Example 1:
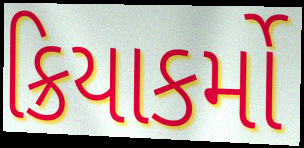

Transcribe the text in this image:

ક્રિયાકર્મો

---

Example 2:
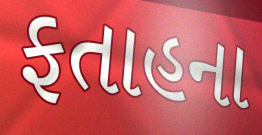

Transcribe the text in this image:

ફતાહના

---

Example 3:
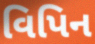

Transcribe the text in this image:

વિપિન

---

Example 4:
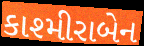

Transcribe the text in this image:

કાશ્મીરાબેન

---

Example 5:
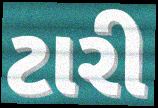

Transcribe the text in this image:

ટારી